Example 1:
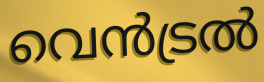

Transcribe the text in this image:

വെൻട്രൽ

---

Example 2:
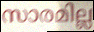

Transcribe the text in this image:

സാരമില്ല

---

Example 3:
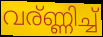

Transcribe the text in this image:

വര്ണ്ണിച്ച്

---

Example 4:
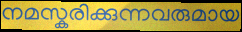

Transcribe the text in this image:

നമസ്കരിക്കുന്നവരുമായ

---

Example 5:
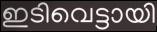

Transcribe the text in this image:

ഇടിവെട്ടായി